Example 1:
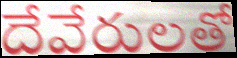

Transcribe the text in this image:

దేవేరులతో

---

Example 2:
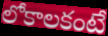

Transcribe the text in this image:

లోకాలకంటే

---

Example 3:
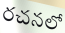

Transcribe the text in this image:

రచనలో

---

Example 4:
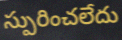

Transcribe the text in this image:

స్పురించలేదు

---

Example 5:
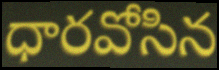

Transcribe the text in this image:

ధారవోసిన